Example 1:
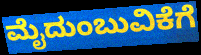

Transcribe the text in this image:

ಮೈದುಂಬುವಿಕೆಗೆ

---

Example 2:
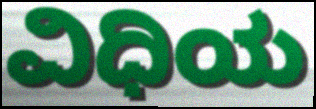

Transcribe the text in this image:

ವಿಧಿಯ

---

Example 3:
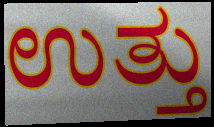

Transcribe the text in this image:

ಉತ್ತು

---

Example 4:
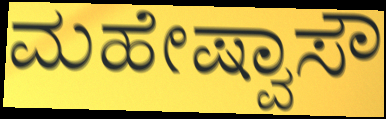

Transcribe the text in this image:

ಮಹೇಷ್ವಾಸೌ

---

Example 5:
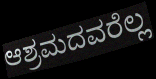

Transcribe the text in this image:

ಆಶ್ರಮದವರೆಲ್ಲ